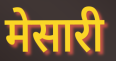
मेसारी